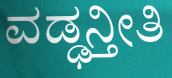
ವಡ್ಢನ್ತೀತಿ